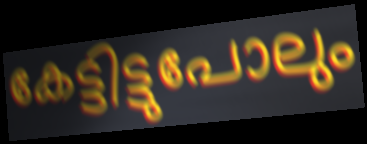
കേട്ടിട്ടുപോലും